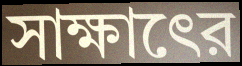
সাক্ষাৎের